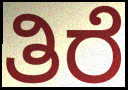
ತಿರೆ